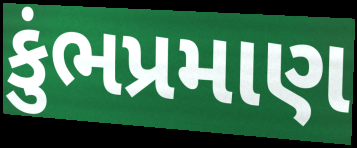
કુંભપ્રમાણ